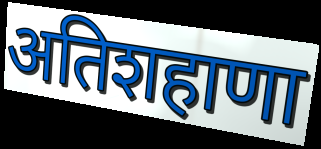
अतिशहाणा